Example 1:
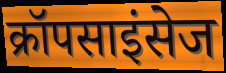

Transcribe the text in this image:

क्रॉपसाइंसेज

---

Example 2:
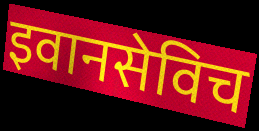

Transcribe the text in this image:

इवानसेविच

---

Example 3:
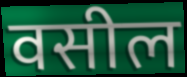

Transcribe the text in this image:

वसील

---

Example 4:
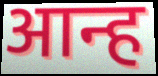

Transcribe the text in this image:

आन्ह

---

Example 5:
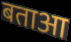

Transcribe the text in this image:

बताआ